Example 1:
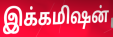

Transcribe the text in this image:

இக்கமிஷன்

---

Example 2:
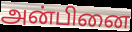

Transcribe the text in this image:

அன்பினை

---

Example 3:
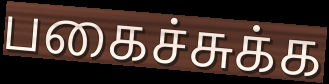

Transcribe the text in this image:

பகைச்சுக்க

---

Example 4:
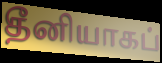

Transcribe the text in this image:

தீனியாகப்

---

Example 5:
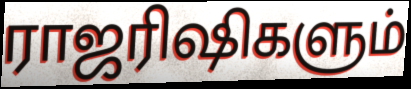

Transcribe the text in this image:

ராஜரிஷிகளும்